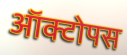
ऑक्टोपस